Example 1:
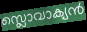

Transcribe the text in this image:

സ്ലൊവാക്യൻ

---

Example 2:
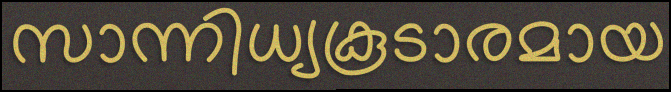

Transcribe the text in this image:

സാന്നിധ്യകൂടാരമായ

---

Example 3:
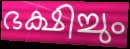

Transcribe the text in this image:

ഭക്ഷിച്ചും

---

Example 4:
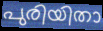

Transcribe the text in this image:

പുരിയിതാ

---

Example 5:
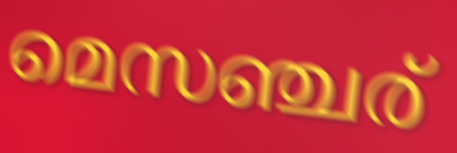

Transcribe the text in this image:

മെസഞ്ചര്